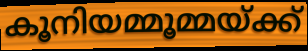
കൂനിയമ്മൂമ്മയ്ക്ക്